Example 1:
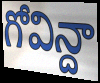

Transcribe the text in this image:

గోవిన్దా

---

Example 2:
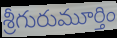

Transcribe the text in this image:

శ్రీగురుమూర్తిం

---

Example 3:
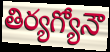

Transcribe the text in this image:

తిర్యగ్యోనౌ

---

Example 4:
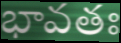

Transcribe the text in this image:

భావతః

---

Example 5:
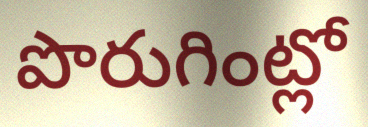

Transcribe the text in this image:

పొరుగింట్లో